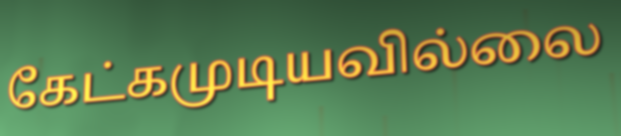
கேட்கமுடியவில்லை